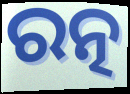
ରତ୍ନ